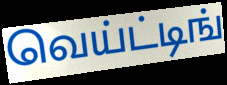
வெய்ட்டிங்